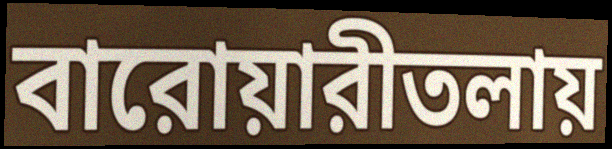
বারোয়ারীতলায়